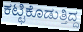
ಕಟ್ಟಿಕೊಡುತ್ತಿದ್ದ